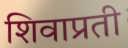
शिवाप्रती